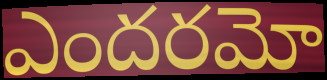
ఎందరమో